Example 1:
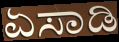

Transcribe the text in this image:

ಏಸಾಡಿ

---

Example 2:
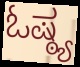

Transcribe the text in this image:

ಓಷ್ಠ್ಯ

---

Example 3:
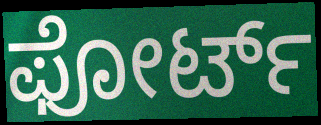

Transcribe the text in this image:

ಫೋರ್ಟ್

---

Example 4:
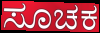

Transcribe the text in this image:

ಸೂಚಕ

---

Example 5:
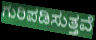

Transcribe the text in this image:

ಗುರಿಪಡಿಸುತ್ತವೆ